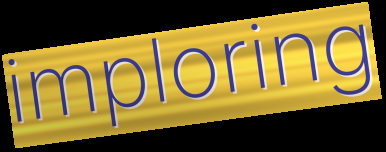
imploring